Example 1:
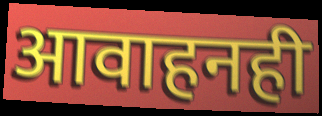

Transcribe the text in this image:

आवाहनही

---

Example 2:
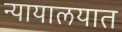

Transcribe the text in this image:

न्यायालयात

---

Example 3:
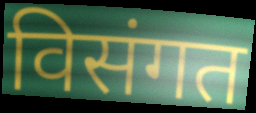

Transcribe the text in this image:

विसंगत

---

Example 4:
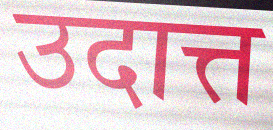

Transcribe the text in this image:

उदात्त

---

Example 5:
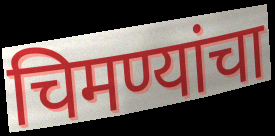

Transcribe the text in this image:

चिमण्यांचा